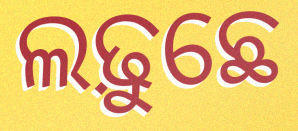
ଲଢ଼ୁଛେ